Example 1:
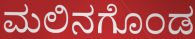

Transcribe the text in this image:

ಮಲಿನಗೊಂಡ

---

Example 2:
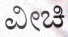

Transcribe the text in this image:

ವೀಚಿ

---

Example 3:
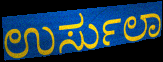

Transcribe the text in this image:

ಉರ್ಸುಲಾ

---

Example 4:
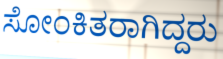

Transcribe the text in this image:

ಸೋಂಕಿತರಾಗಿದ್ದರು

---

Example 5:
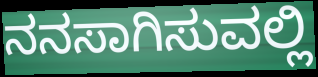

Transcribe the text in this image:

ನನಸಾಗಿಸುವಲ್ಲಿ